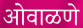
ओवाळणे